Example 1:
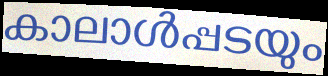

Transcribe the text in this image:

കാലാൾപ്പടയും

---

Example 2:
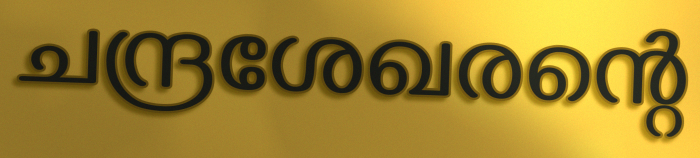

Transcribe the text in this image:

ചന്ദ്രശേഖരന്റെ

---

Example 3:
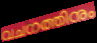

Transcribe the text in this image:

വചനത്തിനും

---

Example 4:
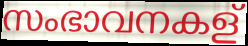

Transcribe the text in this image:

സംഭാവനകള്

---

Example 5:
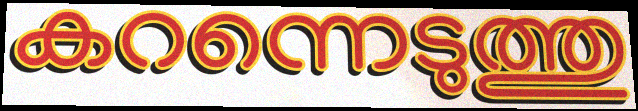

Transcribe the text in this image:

കറന്നെടുത്തു